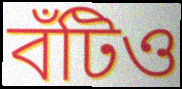
বঁটিও